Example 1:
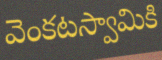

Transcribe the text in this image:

వెంకటస్వామికి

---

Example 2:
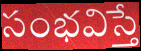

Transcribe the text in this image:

సంభవిస్తే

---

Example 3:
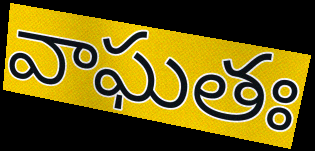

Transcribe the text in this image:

వాఘతః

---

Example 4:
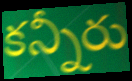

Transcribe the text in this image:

కన్నీరు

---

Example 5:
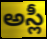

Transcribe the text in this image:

అస్లీ